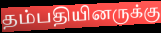
தம்பதியினருக்கு